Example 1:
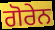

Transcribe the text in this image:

ਗੋਰੇਨ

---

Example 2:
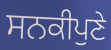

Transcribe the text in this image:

ਸਨਕੀਪੁਣੇ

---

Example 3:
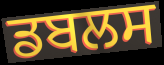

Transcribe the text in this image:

ਡਬਲਸ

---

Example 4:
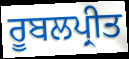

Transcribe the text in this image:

ਰੂਬਲਪ੍ਰੀਤ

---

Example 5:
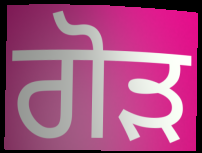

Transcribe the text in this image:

ਗੋੜ